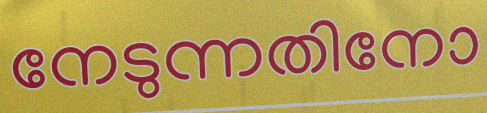
നേടുന്നതിനോ